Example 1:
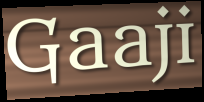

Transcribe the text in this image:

Gaaji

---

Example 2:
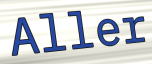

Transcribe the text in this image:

Aller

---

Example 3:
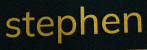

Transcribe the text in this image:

stephen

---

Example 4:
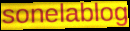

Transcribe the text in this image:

sonelablog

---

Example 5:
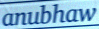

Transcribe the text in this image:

anubhaw